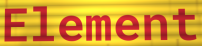
Element